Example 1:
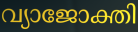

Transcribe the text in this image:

വ്യാജോക്തി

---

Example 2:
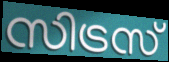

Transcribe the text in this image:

സിട്രസ്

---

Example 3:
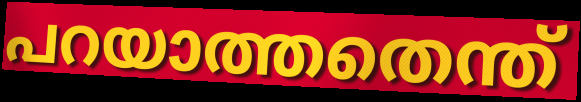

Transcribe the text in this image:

പറയാത്തതെന്ത്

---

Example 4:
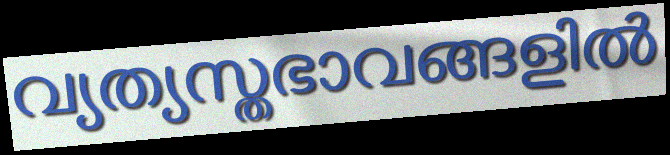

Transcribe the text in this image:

വ്യത്യസ്തഭാവങ്ങളിൽ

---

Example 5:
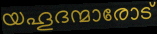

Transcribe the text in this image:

യഹൂദന്മാരോട്